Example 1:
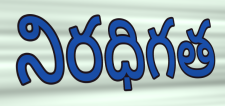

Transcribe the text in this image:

నిరధిగత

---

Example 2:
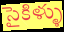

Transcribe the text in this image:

సైకిళ్ళు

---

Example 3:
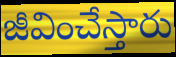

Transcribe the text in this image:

జీవించేస్తారు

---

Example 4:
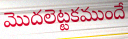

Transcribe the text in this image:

మొదలెట్టకముందే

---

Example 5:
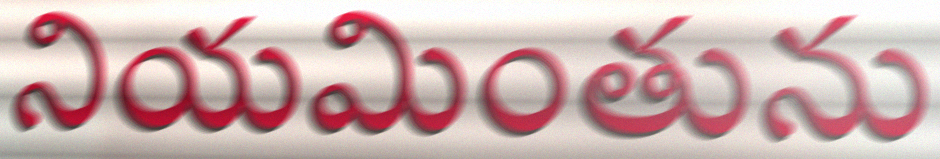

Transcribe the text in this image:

నియమింతును